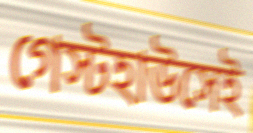
গেস্টহাউসেই